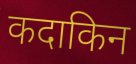
कदाकिन